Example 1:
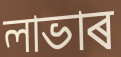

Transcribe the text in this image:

লাভাৰ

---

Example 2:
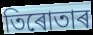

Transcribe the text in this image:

তিৰোতাৰ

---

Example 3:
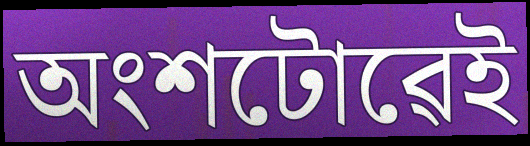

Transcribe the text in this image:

অংশটোৱেই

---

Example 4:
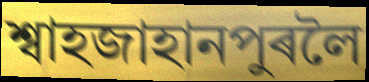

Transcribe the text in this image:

শ্বাহজাহানপুৰলৈ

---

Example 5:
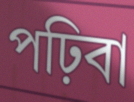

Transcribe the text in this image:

পঢ়িবা